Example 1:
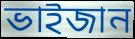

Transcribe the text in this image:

ভাইজান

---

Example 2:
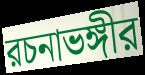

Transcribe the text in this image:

রচনাভঙ্গীর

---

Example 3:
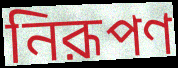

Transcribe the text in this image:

নিরূপণ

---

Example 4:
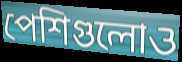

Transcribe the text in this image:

পেশিগুলোও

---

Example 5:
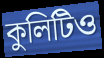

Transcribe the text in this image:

কুলিটিও